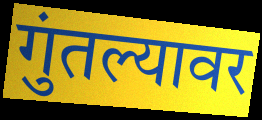
गुंतल्यावर